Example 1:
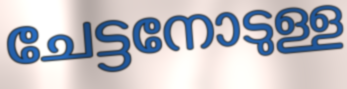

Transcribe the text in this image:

ചേട്ടനോടുള്ള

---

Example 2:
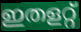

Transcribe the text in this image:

ഇതളറ്റ്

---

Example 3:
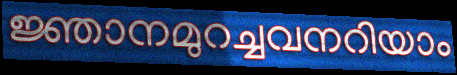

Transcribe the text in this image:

ജ്ഞാനമുറച്ചവനറിയാം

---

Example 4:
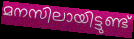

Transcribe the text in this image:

മനസിലായിട്ടുണ്ട്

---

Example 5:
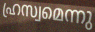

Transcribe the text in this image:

ഹ്രസ്വമെന്നു